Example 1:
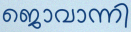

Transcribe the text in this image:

ജൊവാന്നി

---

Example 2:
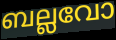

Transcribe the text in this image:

ബല്ലവോ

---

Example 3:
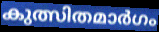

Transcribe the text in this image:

കുത്സിതമാർഗം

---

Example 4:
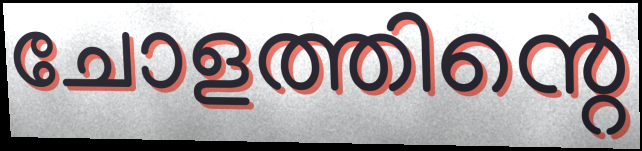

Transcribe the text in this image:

ചോളത്തിന്റെ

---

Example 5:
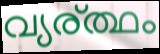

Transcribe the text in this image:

വ്യര്ത്ഥം